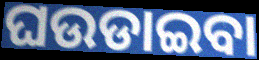
ଘଉଡାଇବା